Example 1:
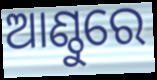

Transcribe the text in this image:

ଆଣ୍ଠୁରେ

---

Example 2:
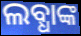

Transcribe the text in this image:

ଲବ୍ଧାଙ୍କ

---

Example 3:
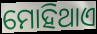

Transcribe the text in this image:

ମୋହିଥାଏ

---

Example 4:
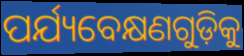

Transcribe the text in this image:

ପର୍ଯ୍ୟବେକ୍ଷଣଗୁଡ଼ିକୁ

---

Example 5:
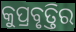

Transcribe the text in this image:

କୁପ୍ରବୃତ୍ତିର